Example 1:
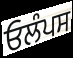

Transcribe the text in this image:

ਓਲੰਪਸ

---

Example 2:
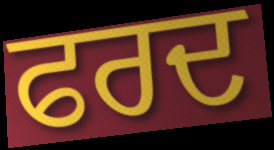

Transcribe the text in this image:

ਫਰਦ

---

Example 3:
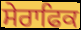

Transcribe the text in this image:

ਸੇਰਾਫਿਕ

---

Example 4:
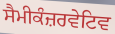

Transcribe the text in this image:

ਸੈਮੀਕੰਜ਼ਰਵੇਟਿਵ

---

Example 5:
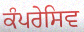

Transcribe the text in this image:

ਕੰਪਰੇਸਿਵ